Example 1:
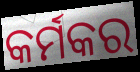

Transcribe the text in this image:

କର୍ମକର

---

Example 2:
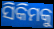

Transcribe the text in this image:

ସିକିମକୁ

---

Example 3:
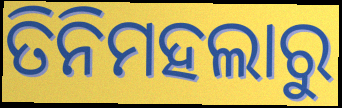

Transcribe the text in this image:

ତିନିମହଲାରୁ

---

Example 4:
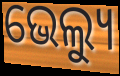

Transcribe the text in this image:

ଭେଲ୍ୟୁ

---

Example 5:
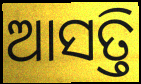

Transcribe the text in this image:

ଆସତ୍ତି